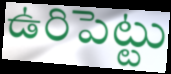
ఉరిపెట్టు